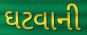
ઘટવાની